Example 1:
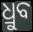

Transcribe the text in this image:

ଧ୍ରୁବ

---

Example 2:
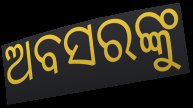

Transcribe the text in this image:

ଅବସରଙ୍କୁ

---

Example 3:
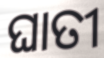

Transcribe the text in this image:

ଘାତୀ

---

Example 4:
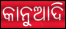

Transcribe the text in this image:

କାନୁଆଦି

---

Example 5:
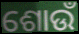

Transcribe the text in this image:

ଶୋଉଁ